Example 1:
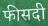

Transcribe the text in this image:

फीसदी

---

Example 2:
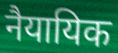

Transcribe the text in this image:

नैयायिक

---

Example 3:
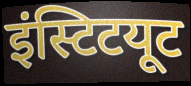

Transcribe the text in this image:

इंस्टिटयूट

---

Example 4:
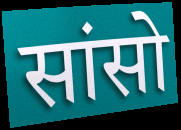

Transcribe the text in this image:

सांसो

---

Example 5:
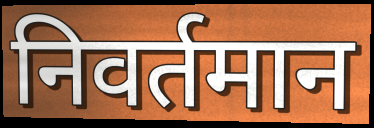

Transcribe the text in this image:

निवर्तमान